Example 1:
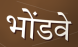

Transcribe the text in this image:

भोंडवे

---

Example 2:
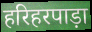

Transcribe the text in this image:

हरिहरपाड़ा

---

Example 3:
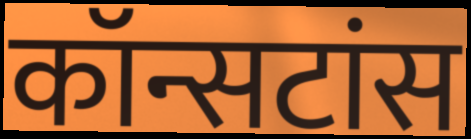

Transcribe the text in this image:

कॉन्सटांस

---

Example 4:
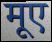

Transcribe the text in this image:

मूए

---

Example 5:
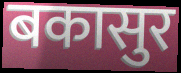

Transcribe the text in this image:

बकासुर